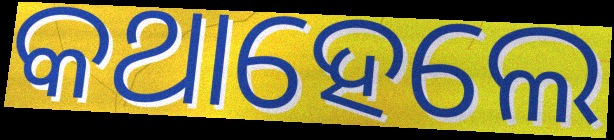
କଥାହେଲେ